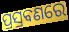
ପ୍ରସ୍ରବଣରେ